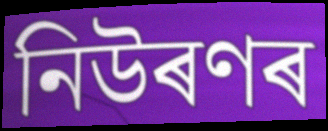
নিউৰণৰ